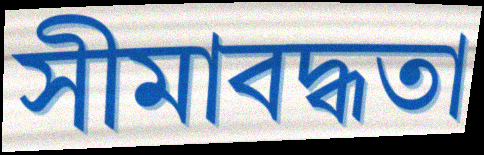
সীমাবদ্ধতা